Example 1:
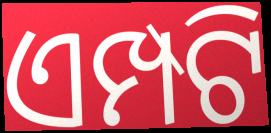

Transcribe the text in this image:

ଏମ୍ପଟି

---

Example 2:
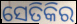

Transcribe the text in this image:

ସେତିକିର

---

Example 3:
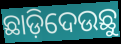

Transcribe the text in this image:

ଛାଡ଼ିଦେଉଛୁ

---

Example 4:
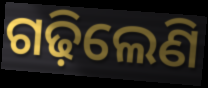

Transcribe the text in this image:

ଗଢ଼ିଲେଣି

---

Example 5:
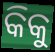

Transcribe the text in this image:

କିକୁ